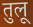
तुलू